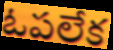
ఓపలేక